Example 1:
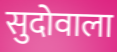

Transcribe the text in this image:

सुदोवाला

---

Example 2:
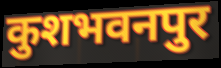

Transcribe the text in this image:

कुशभवनपुर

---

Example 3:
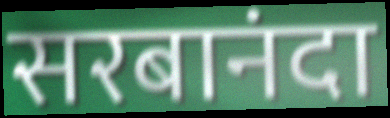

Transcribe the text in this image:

सरबानंदा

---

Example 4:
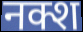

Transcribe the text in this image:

नक्श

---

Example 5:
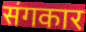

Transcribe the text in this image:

संगकार